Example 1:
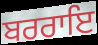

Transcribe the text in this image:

ਬਰਰਾਇ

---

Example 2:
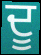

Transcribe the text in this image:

ਦੂ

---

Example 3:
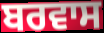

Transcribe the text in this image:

ਬਰਵਾਸ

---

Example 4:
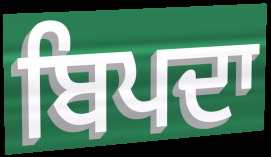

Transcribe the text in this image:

ਬਿਪਦਾ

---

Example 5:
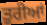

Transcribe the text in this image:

ਤੁਰੀਆਂ